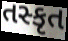
તસ્કૃત